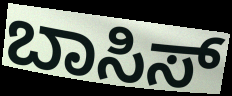
ಬಾಸಿಸ್